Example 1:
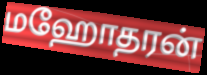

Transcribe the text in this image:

மஹோதரன்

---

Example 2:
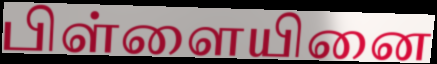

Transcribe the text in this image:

பிள்ளையினை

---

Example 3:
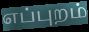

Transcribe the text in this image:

எப்புறம்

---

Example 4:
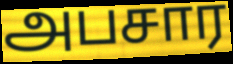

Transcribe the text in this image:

அபசார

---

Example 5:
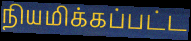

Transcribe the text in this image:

நியமிக்கப்பட்ட